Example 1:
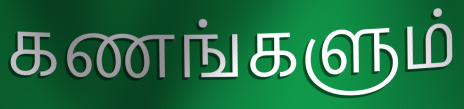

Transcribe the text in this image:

கணங்களும்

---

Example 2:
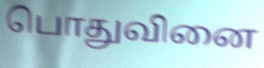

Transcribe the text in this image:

பொதுவினை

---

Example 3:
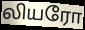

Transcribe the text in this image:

லியரோ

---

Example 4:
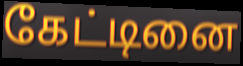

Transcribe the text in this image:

கேட்டினை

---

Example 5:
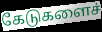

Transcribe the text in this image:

கேடுகளைச்